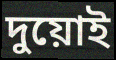
দুয়োই